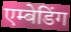
एम्बेडिंग